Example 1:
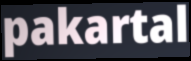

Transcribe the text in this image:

pakartal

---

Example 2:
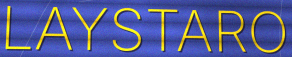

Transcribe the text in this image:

LAYSTARO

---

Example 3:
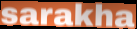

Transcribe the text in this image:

sarakha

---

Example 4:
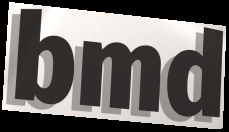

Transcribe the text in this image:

bmd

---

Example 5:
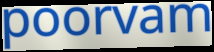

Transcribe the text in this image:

poorvam